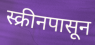
स्क्रीनपासून